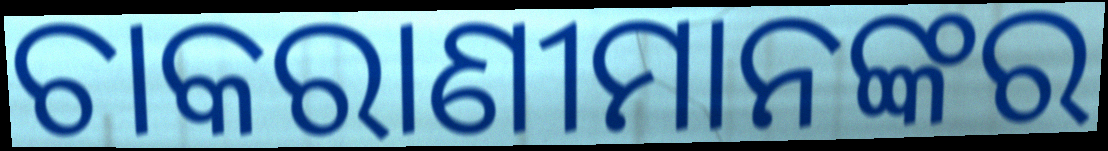
ଚାକରାଣୀମାନଙ୍କର